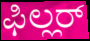
ಫಿಲ್ಲರ್